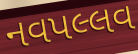
નવપલ્લવ